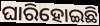
ଘାରିହୋଇଛି